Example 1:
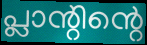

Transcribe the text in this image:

പ്ലാന്റിന്റെ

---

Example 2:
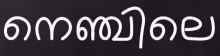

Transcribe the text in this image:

നെഞ്ചിലെ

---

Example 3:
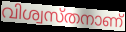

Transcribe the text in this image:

വിശ്വസ്തനാണ്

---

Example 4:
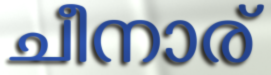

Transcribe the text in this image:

ചീനാര്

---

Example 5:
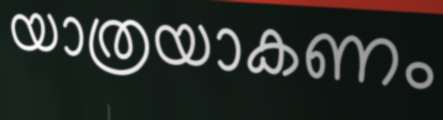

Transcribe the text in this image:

യാത്രയാകണം